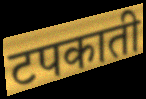
टपकाती